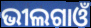
ଭୀଲଗାଓଁ